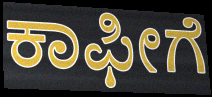
ಕಾಫೀಗೆ